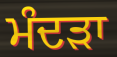
ਮੰਦੜਾ